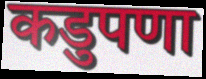
कडुपणा